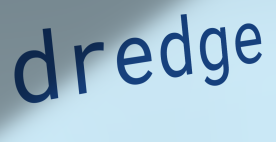
dredge